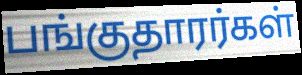
பங்குதாரர்கள்